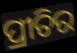
ପ୍ରୀତିର